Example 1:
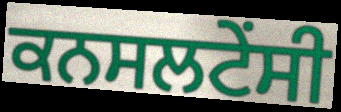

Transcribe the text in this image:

ਕਨਸਲਟੇਂਸੀ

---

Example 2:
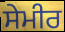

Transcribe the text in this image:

ਸੇਮੀਰ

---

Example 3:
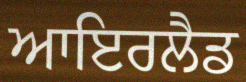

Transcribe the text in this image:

ਆਇਰਲੈਡ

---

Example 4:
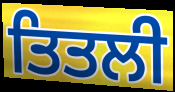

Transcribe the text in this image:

ਤਿਤਲੀ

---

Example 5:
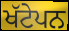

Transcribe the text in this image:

ਖੱਟੇਪਨ